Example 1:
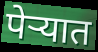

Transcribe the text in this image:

पेऱ्यात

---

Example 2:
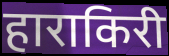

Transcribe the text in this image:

हाराकिरी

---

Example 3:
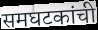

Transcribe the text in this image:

समघटकांची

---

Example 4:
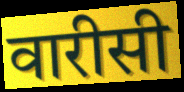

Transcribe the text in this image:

वारीसी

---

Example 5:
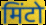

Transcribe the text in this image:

मिंटो